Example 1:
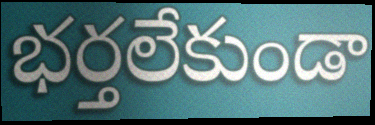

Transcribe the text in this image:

భర్తలేకుండా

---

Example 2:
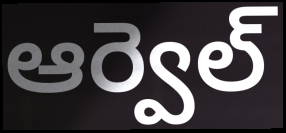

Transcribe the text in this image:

ఆర్వెల్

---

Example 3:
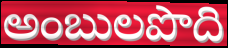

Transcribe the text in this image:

అంబులపొది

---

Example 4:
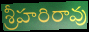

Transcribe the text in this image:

శ్రీహరిరావు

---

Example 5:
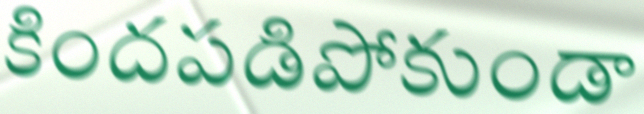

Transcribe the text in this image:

కిందపడిపోకుండా